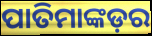
ପାତିମାଙ୍କଡ଼ର